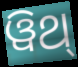
ୱିଥ୍